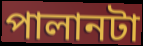
পালানটা